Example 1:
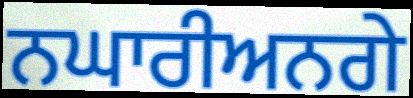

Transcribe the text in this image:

ਨਘਾਰੀਅਨਗੇ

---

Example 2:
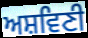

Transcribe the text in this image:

ਅਸ਼ਵਿਣੀ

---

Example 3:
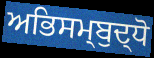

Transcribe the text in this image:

ਅਭਿਸਮ੍ਬੁਦ੍ਧੋ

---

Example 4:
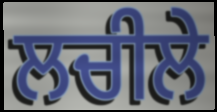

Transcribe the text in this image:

ਲਚੀਲੇ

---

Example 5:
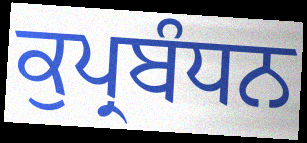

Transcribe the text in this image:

ਕੁਪ੍ਰਬੰਧਨ